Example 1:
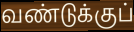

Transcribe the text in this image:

வண்டுக்குப்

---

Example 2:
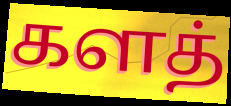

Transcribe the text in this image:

களத்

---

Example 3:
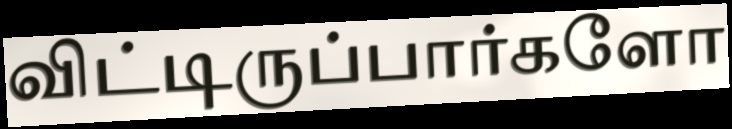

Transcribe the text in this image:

விட்டிருப்பார்களோ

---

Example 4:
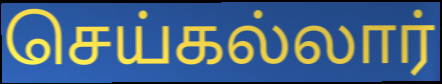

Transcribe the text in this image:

செய்கல்லார்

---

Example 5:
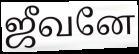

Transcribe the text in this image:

ஜீவனே